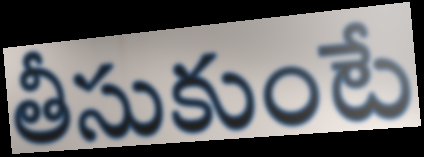
తీసుకుంటే